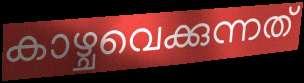
കാഴ്ചവെക്കുന്നത്